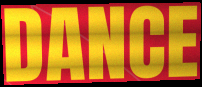
DANCE